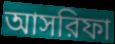
আসরিফা